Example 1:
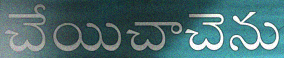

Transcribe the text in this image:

చేయిచాచెను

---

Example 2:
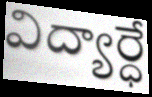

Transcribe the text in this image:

విద్యార్ధే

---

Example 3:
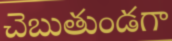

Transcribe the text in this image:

చెబుతుండగా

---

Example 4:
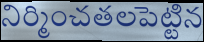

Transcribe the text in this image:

నిర్మించతలపెట్టిన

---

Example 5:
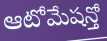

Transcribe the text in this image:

ఆటోమేషన్తో